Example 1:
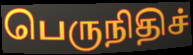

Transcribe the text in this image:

பெருநிதிச்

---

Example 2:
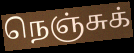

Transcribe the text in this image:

நெஞ்சுக்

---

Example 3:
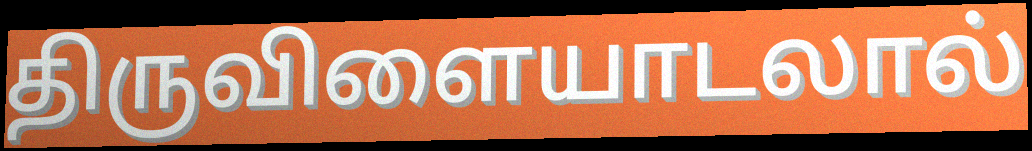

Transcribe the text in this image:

திருவிளையாடலால்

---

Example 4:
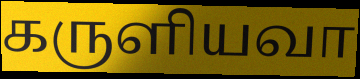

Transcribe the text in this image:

கருளியவா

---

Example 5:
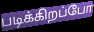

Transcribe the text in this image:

படிக்கிறப்போ